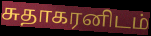
சுதாகரனிடம்